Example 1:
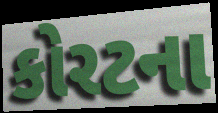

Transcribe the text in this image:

કોરટના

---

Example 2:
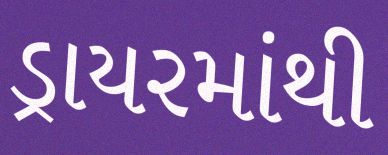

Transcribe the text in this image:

ડ્રાયરમાંથી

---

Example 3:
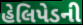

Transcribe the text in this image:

હેલિપેડની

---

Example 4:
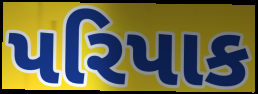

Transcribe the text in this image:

પરિપાક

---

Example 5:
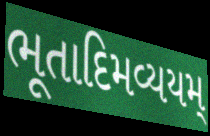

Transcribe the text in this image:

ભૂતાદિમવ્યયમ્